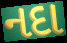
નદા